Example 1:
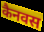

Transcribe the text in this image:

कैनवस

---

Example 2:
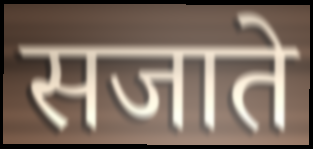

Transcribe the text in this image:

सजाते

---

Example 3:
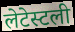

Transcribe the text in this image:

लेटेस्टली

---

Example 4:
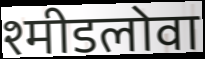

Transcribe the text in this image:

श्मीडलोवा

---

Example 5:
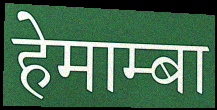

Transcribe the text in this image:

हेमाम्बा